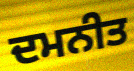
ਦਮਨੀਤ